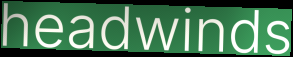
headwinds